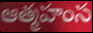
ఆత్మహంస